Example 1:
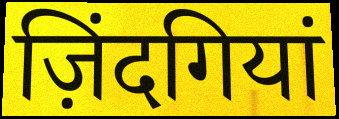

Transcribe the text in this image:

ज़िंदगियां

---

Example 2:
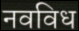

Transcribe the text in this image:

नवविध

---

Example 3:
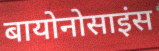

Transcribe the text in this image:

बायोनोसाइंस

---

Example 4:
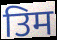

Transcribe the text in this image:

उिम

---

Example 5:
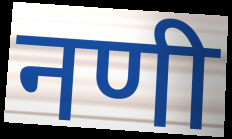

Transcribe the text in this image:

नणी